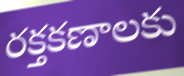
రక్తకణాలకు